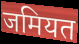
जमियत